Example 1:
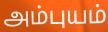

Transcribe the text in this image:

அம்புயம்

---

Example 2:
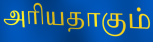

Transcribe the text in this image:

அரியதாகும்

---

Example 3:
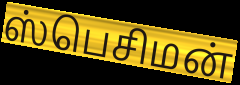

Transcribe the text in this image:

ஸ்பெசிமன்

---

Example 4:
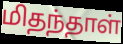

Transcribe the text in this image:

மிதந்தாள்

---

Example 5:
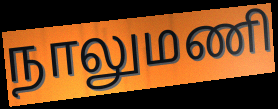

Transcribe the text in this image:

நாலுமணி